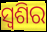
ସ୍ଵଶିର